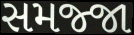
સમજ્જા